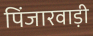
पिंजारवाड़ी